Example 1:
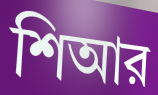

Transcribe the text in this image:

শিআর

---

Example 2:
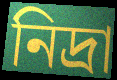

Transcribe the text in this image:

নিদ্রা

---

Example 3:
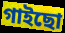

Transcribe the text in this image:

গাইছো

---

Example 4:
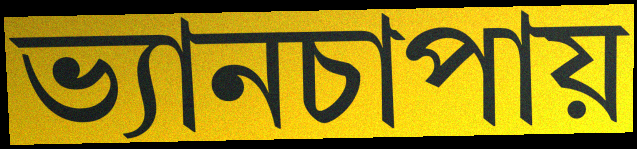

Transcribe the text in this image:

ভ্যানচাপায়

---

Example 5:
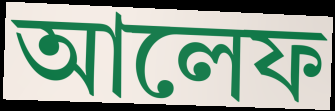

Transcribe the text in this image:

আলেফ